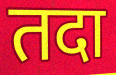
तदा